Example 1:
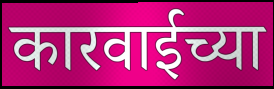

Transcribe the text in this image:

कारवाईच्या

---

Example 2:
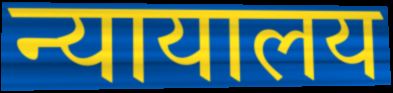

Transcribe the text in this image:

न्यायालय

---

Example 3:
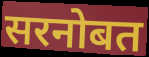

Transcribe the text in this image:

सरनोबत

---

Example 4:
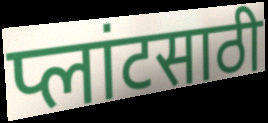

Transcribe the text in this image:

प्लांटसाठी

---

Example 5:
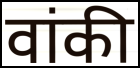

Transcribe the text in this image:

वांकी